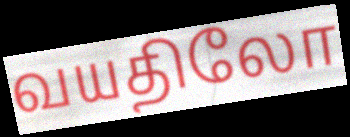
வயதிலோ